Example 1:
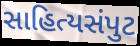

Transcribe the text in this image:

સાહિત્યસંપુટ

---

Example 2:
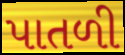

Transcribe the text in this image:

પાતળી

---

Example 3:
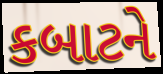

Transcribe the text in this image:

કબાટને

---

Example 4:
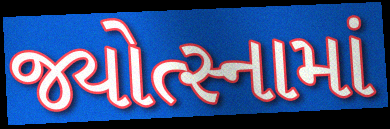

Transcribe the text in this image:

જ્યોત્સ્નામાં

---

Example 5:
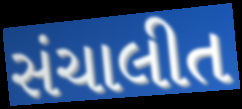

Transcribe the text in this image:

સંચાલીત